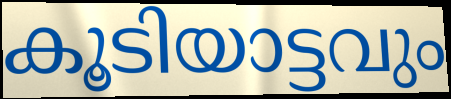
കൂടിയാട്ടവും